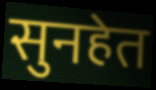
सुनहेत